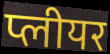
प्लीयर